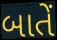
બાતેં